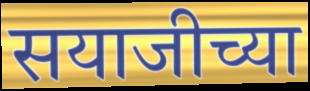
सयाजीच्या